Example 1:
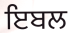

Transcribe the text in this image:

ਇਬਲ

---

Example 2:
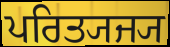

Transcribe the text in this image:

ਪਰਿਤ੍ਯਜ੍ਯ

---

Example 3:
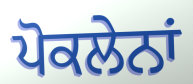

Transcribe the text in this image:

ਪੋਕਲੇਨਾਂ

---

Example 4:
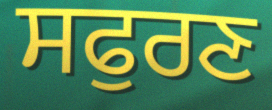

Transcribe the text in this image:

ਸਫੁਰਣ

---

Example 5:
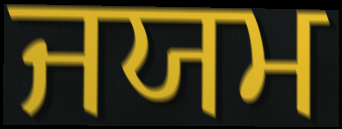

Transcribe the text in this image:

ਜਯਮ